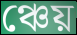
ঞ্চেয়